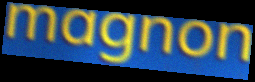
magnon